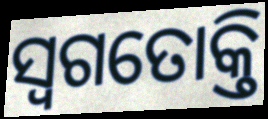
ସ୍ୱଗତୋକ୍ତି